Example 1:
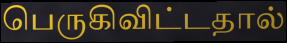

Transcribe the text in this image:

பெருகிவிட்டதால்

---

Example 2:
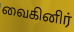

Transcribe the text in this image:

வைகினிர்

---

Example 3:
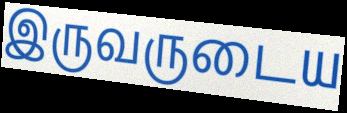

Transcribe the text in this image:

இருவருடைய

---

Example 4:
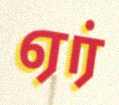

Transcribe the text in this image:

ஏர்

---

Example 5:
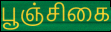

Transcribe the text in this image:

பூஞ்சிகை